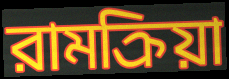
রামক্রিয়া